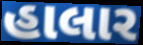
હાલાર